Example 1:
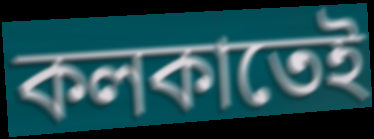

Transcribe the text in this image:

কলকাতেই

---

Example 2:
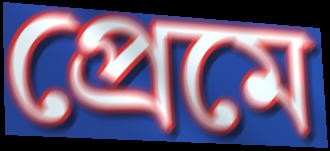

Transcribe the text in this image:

প্রেমে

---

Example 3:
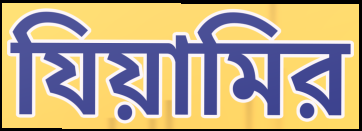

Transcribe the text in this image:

যিয়ামির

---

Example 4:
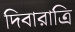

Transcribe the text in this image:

দিবারাত্রি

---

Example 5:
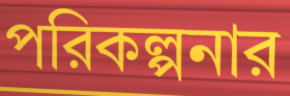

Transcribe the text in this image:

পরিকল্পনার